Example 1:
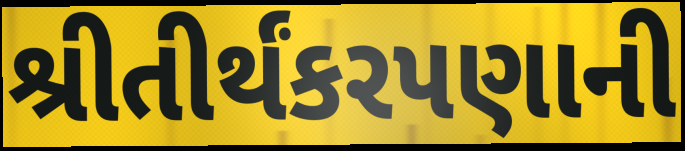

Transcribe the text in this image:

શ્રીતીર્થંકરપણાની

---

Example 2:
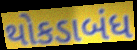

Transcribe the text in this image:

થોકડાબંધ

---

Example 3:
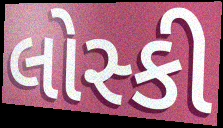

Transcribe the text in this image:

લોસ્કી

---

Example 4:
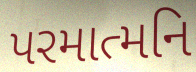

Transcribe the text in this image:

પરમાત્મનિ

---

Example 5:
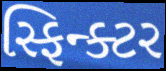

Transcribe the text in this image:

સ્ફિન્ક્ટર